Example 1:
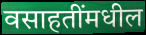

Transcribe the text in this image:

वसाहतींमधील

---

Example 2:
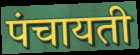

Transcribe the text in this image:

पंचायती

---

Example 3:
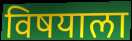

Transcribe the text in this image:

विषयाला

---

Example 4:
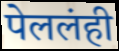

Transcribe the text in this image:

पेललंही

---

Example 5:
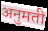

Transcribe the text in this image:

अनुमती